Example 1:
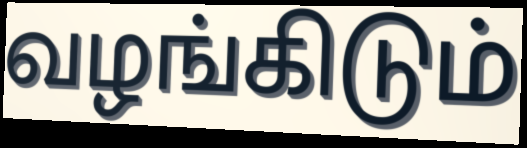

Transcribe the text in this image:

வழங்கிடும்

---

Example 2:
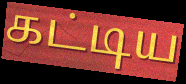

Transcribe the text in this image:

கட்டிய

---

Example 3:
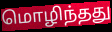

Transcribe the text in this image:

மொழிந்தது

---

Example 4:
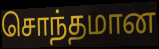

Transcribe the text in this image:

சொந்தமான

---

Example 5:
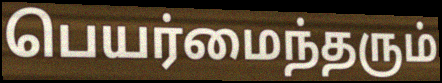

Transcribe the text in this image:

பெயர்மைந்தரும்